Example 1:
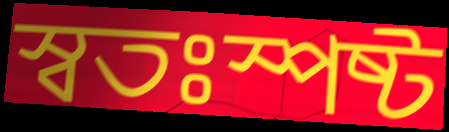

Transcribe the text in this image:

স্বতঃস্পষ্ট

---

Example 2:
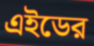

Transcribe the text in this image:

এইডের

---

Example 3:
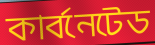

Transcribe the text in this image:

কার্বনেটেড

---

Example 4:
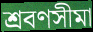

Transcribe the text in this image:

শ্রবণসীমা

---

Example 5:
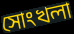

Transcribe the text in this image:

সোংখলা